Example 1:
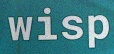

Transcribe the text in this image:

wisp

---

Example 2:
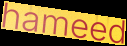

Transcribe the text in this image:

hameed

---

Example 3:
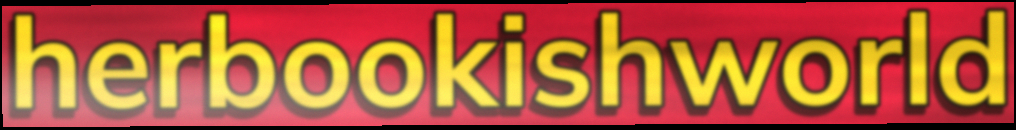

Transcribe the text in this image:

herbookishworld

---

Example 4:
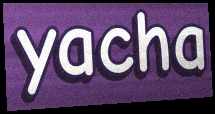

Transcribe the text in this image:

yacha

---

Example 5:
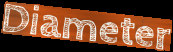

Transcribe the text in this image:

Diameter